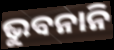
ଭୁବନାନି